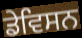
ਡੇਵਿਸਨ